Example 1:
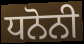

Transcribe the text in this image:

ਧਨੋਨੀ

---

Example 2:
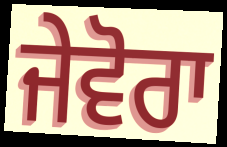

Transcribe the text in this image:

ਜੇਵੋਰਾ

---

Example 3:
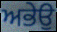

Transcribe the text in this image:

ਅਭੇਉ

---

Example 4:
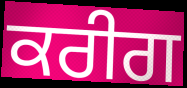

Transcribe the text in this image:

ਕਰੀਗ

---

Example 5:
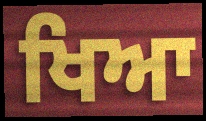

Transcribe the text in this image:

ਖਿਆ